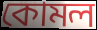
কোমল